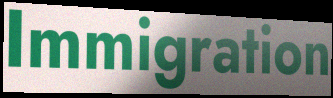
Immigration